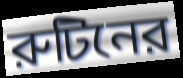
রুটিনের